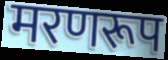
मरणरूप